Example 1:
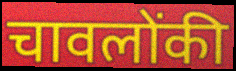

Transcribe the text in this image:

चावलोंकी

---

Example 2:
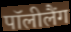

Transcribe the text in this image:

पॉलीलैंग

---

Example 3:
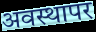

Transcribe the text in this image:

अवस्थापर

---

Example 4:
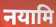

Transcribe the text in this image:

नयामि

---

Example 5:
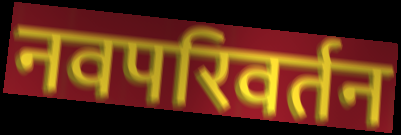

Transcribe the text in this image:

नवपरिवर्तन